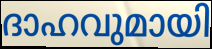
ദാഹവുമായി